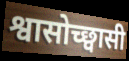
श्वासोच्छ्वासी